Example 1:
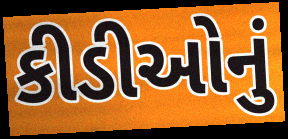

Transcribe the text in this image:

કીડીઓનું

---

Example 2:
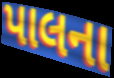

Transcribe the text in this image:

પાલના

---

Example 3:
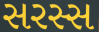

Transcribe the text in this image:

સરસ્સ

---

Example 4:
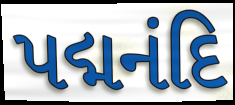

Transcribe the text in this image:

પદ્મનંદિ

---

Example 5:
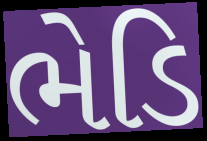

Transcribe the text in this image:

ભેડિ